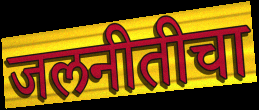
जलनीतीचा